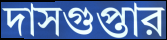
দাসগুপ্তার